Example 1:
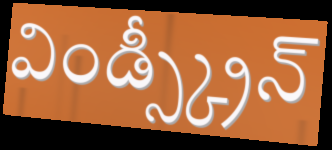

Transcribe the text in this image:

విండ్స్క్రీన్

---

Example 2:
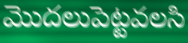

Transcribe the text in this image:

మొదలుపెట్టవలసి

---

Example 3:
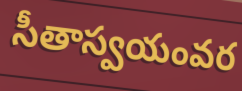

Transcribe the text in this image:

సీతాస్వయంవర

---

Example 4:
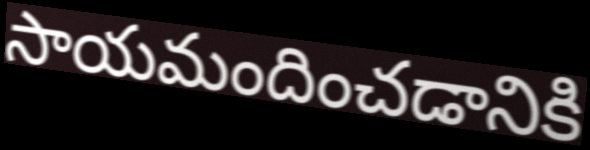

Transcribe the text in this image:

సాయమందించడానికి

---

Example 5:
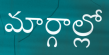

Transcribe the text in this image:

మార్గాల్లో